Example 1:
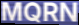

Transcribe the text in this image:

MQRN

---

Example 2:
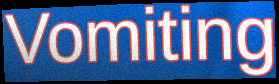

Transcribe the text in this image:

Vomiting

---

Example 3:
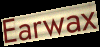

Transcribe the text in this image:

Earwax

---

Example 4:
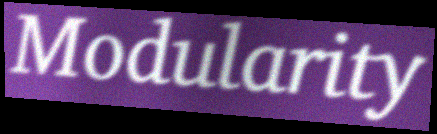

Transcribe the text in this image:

Modularity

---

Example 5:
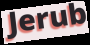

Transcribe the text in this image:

Jerub